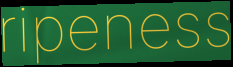
ripeness